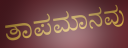
ತಾಪಮಾನವು